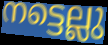
നട്ടെല്ലു